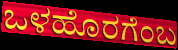
ಒಳಹೊರಗೆಂಬ